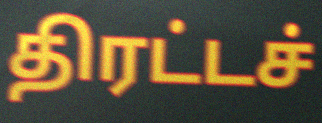
திரட்டச்